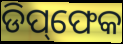
ଡିପ୍‌ଫେକ